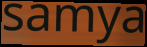
samya